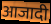
आजादी